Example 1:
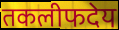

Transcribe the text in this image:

तकलीफदेय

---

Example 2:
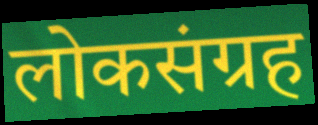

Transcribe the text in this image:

लोकसंग्रह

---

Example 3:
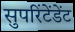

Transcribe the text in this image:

सुपरिंटेंडेंट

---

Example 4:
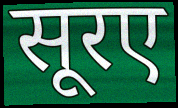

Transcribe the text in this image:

सूरए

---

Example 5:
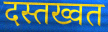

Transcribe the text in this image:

दस्तख्वत